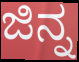
ಜಿನ್ನ